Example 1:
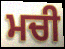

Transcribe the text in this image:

ਮਚੀ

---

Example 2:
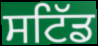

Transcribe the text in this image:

ਸਟਿੱਡ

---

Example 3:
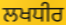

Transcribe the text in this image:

ਲਖਧੀਰ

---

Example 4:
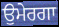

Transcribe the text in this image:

ਉਮੇਰਗਾ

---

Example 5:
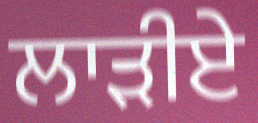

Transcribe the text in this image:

ਲਾੜੀਏ